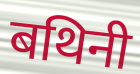
बथिनी